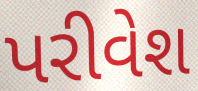
પરીવેશ